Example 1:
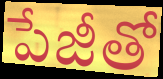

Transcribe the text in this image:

పేజీతో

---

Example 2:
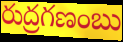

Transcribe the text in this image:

రుద్రగణంబు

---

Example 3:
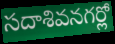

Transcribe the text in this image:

సదాశివనగర్లో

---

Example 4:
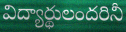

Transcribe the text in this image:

విద్యార్థులందరినీ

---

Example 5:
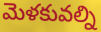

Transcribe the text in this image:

మెళకువల్ని